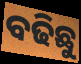
ବଢିଛୁ